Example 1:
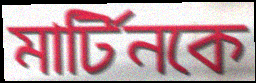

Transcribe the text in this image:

মার্টিনকে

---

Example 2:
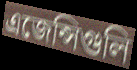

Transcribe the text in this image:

এজেন্সিগুলি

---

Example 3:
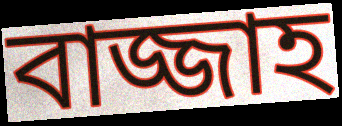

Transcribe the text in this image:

বাজ্জাহ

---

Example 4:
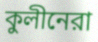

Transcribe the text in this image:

কুলীনেরা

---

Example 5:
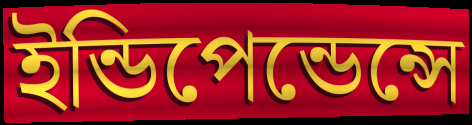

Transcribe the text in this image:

ইন্ডিপেন্ডেন্সে